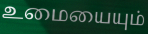
உமையையும்